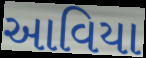
આવિયા